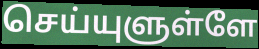
செய்யுளுள்ளே